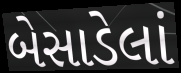
બેસાડેલાં